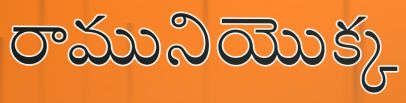
రామునియొక్క